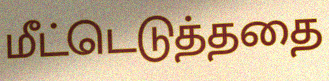
மீட்டெடுத்ததை